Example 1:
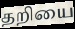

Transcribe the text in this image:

தறியை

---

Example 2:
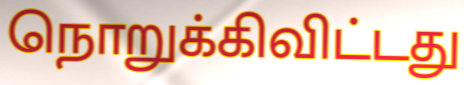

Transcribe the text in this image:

நொறுக்கிவிட்டது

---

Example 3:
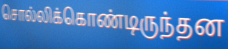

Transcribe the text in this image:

சொல்லிக்கொண்டிருந்தன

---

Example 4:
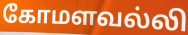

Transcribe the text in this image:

கோமளவல்லி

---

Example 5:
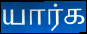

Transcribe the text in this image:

யார்க